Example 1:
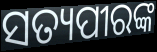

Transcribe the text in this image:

ସତ୍ୟପୀରଙ୍କ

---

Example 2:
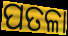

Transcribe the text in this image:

ପତଳା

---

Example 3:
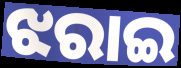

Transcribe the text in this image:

ଝରାଇ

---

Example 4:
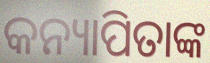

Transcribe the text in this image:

କନ୍ୟାପିତାଙ୍କ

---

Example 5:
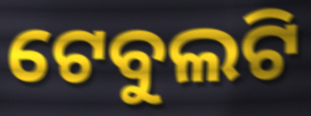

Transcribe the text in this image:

ଟେବୁଲଟି